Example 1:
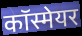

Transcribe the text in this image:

कॉस्मेयर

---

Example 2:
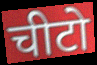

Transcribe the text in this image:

चीटो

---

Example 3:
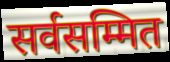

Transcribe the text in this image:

सर्वसम्मित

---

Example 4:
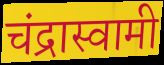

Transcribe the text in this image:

चंद्रास्वामी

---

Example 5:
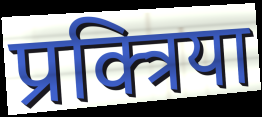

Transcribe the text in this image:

प्रक्त्रिया